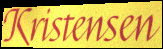
Kristensen